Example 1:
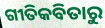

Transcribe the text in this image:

ଗୀତିକବିତାରୁ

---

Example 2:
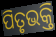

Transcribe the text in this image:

ପିତୃଭକ୍ତି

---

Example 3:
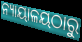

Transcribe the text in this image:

ନ୍ୟାୟାଳୟଠାରୁ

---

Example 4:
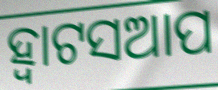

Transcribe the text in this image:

ହ୍ୱାଟସଆପ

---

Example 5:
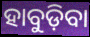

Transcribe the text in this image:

ହାବୁଡ଼ିବା